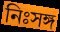
নিঃসঙ্গ